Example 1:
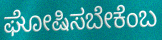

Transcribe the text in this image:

ಘೋಷಿಸಬೇಕೆಂಬ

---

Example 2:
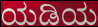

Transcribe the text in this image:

ಯಡಿಯ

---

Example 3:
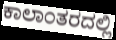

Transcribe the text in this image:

ಕಾಲಾಂತರದಲ್ಲಿ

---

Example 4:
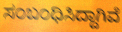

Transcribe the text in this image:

ಸಂಬಂಧಿಸಿದ್ದಾಗಿವೆ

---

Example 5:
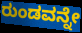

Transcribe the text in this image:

ರುಂಡವನ್ನೇ